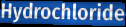
Hydrochloride